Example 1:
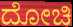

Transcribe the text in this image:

ದೋಚಿ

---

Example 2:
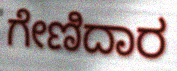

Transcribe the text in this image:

ಗೇಣಿದಾರ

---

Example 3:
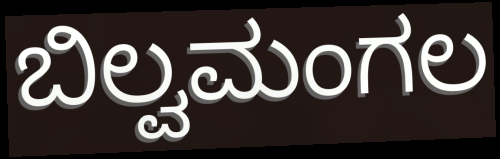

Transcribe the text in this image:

ಬಿಲ್ವಮಂಗಲ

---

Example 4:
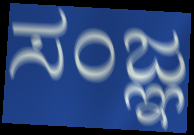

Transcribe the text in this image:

ಸಂಜ್ಞ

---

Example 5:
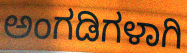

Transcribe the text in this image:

ಅಂಗಡಿಗಳಾಗಿ